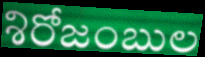
శిరోజంబుల